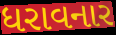
ધરાવનાર